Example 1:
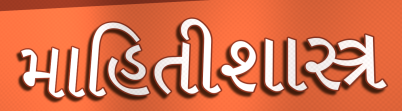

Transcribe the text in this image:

માહિતીશાસ્ત્ર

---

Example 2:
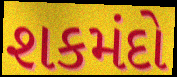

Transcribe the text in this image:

શકમંદો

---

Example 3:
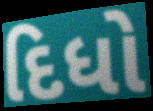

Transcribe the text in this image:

દિધો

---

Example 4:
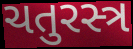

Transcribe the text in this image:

ચતુરસ્ત્ર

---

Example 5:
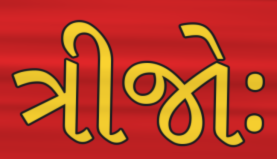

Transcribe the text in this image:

ત્રીજોઃ